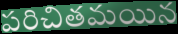
పరిచితమయిన